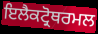
ਇਲੈਕਟ੍ਰੋਥਰਮਲ